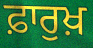
ਫ਼ਾਰੁਖ਼